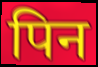
पिन